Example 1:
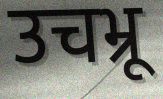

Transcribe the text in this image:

उचभ्रू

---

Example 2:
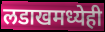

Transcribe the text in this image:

लडाखमध्येही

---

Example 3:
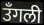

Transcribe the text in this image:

उँगली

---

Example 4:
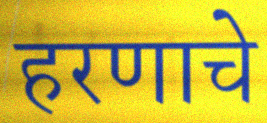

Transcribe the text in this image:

हरणाचे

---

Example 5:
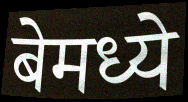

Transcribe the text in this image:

बेमध्ये